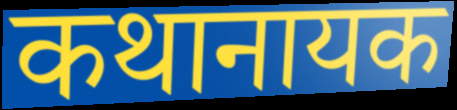
कथानायक